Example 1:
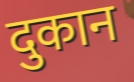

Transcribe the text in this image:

दुकान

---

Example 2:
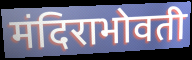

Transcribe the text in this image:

मंदिराभोवती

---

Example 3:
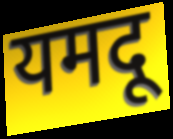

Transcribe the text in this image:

यमदू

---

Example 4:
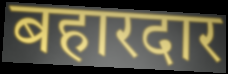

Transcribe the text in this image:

बहारदार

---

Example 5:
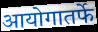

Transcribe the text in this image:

आयोगातर्फे